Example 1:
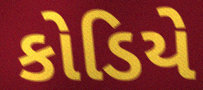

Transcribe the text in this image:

કોડિયે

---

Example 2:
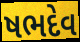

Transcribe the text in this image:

ષભદેવ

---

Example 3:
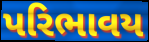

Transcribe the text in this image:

પરિભાવય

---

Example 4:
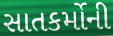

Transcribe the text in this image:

સાતકર્મોની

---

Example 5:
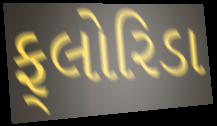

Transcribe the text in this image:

ફ્‌લોરિડા